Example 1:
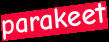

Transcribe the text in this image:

parakeet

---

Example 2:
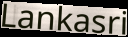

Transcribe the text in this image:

Lankasri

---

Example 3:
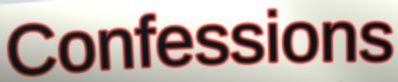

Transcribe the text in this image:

Confessions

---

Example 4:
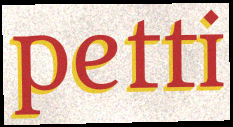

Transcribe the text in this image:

petti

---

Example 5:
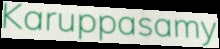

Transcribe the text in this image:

Karuppasamy